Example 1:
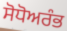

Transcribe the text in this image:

ਸੋਧੋਅਰੰਭ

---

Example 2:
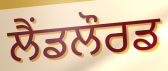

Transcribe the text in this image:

ਲੈਂਡਲੌਰਡ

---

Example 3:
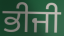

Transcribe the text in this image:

ਭੀਜੀ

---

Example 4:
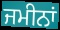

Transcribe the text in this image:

ਜਮੀਨਾਂ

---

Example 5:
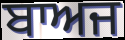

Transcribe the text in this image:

ਬਾਅਜ